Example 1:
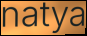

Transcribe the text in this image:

natya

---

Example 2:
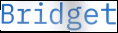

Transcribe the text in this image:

Bridget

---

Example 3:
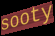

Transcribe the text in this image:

sooty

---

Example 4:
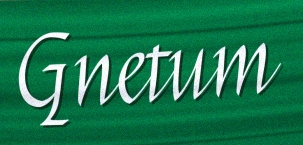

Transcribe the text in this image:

Gnetum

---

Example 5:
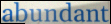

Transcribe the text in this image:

abundant